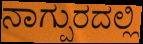
ನಾಗ್ಪುರದಲ್ಲಿ